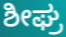
ಶೀಘ್ರ